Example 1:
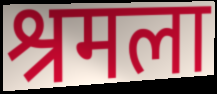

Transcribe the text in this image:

श्रमला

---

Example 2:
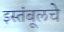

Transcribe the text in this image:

इस्तंबूलचे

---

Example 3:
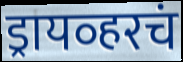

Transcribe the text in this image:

ड्रायव्हरचं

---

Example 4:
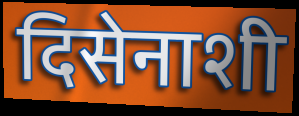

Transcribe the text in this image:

दिसेनाशी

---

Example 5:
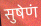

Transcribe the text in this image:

सुषेणं